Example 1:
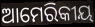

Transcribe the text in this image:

ଆମେରିକୀୟ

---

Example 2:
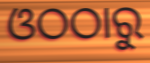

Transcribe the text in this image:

ଓଠଠାରୁ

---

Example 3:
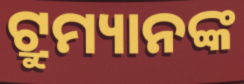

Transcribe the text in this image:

ଟ୍ରୁମ୍ୟାନଙ୍କ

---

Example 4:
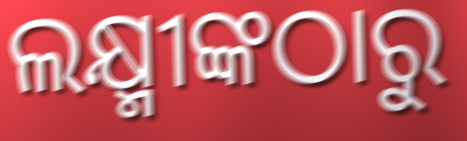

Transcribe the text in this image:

ଲକ୍ଷ୍ମୀଙ୍କଠାରୁ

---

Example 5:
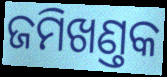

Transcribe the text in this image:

ଜମିଖଣ୍ତକ